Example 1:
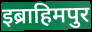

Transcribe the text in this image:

इब्राहिमपुर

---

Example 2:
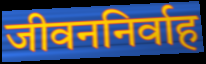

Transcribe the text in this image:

जीवननिर्वाह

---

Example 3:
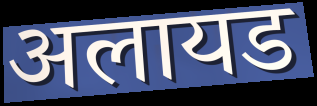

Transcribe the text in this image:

अलायड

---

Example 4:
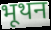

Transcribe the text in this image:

भूथन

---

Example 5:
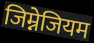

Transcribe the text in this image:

जिम्नेजियम